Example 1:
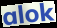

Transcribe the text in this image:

alok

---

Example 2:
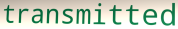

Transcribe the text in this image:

transmitted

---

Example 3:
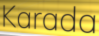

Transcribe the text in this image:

Karada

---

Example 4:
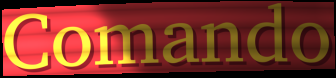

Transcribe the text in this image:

Comando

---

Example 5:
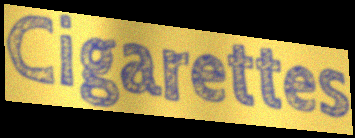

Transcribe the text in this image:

Cigarettes